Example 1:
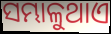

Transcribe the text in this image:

ସମ୍ଭାଳୁଥାଏ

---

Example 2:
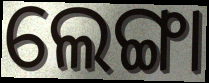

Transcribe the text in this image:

ଲେଙ୍ଗା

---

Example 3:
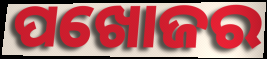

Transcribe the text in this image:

ପଖୋଜର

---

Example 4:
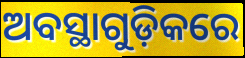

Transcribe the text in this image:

ଅବସ୍ଥାଗୁଡ଼ିକରେ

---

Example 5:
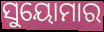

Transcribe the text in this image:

ସୁୟୋମାର